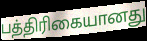
பத்திரிகையானது